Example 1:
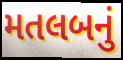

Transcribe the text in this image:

મતલબનું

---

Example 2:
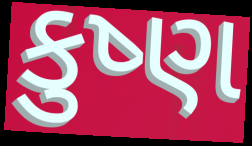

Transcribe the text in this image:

કુષ્ણ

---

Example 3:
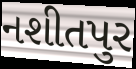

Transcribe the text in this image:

નશીતપુર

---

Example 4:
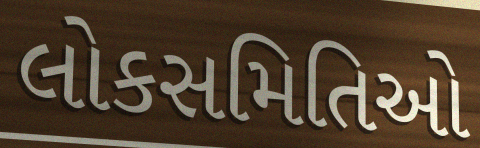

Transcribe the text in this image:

લોકસમિતિઓ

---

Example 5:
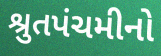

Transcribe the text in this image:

શ્રુતપંચમીનો